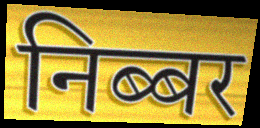
निब्बर